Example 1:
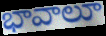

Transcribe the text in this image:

భావాలూ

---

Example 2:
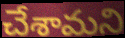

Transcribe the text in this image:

చేశామని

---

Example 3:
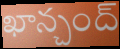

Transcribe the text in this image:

ఖాన్చంద్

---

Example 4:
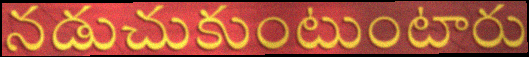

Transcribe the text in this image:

నడుచుకుంటుంటారు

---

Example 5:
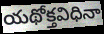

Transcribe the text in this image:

యథోక్తవిధినా